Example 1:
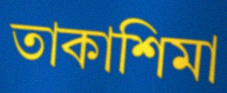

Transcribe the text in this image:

তাকাশিমা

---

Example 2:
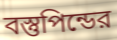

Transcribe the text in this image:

বস্তুপিন্ডের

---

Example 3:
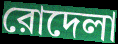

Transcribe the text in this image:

রোদেলা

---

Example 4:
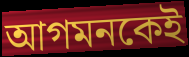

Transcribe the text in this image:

আগমনকেই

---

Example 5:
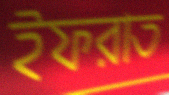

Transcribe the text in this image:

ইফরাত